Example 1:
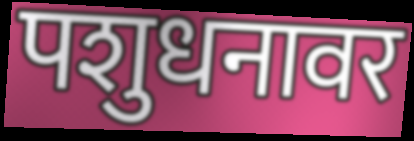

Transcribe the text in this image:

पशुधनावर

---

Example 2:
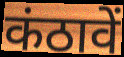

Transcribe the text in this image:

कंठावें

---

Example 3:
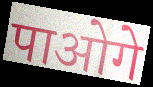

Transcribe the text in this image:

पाओगे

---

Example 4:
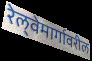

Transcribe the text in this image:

रेल्वेमार्गावरील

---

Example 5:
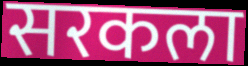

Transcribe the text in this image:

सरकला